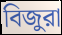
বিজুরা